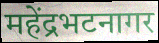
महेंद्रभटनागर